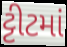
ટ્ટીટમાં